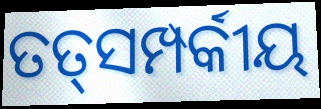
ତତ୍‍ସମ୍ପର୍କୀୟ